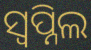
ସ୍ୱପ୍ନିଲ